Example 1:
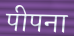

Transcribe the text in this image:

पीपना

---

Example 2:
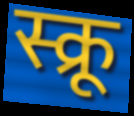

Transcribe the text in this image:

स्क्रू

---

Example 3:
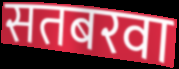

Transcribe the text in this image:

सतबरवा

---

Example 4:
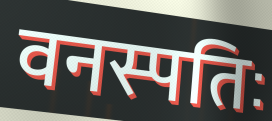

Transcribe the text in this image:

वनस्पतिः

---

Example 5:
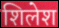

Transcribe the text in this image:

शिलेश